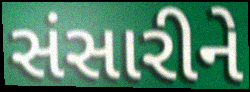
સંસારીને